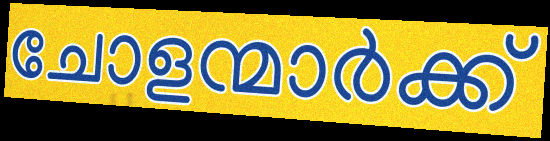
ചോളന്മാർക്ക്